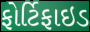
ફોર્ટિફાઇડ